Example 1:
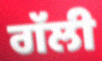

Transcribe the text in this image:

ਗੱਲੀ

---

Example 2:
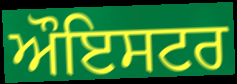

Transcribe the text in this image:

ਔਇਸਟਰ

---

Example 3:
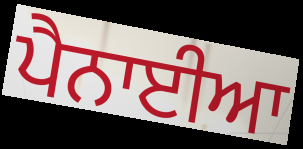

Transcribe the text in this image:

ਪੈਨਾਈਆ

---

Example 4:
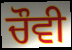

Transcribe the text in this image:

ਚੌਵੀ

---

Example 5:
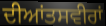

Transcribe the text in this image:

ਦੀਆਂਤਸਵੀਰਾਂ